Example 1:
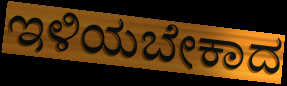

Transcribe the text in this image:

ಇಳಿಯಬೇಕಾದ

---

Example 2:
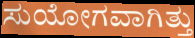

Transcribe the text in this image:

ಸುಯೋಗವಾಗಿತ್ತು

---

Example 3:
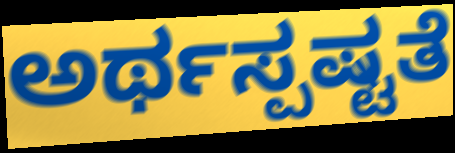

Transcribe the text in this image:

ಅರ್ಥಸ್ಪಷ್ಟತೆ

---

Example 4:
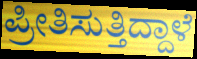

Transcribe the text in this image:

ಪ್ರೀತಿಸುತ್ತಿದ್ದಾಳೆ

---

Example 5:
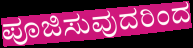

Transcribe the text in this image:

ಪೂಜಿಸುವುದರಿಂದ